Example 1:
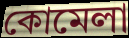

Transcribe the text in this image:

কোমেলা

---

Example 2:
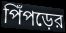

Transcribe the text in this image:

পিঁপড়ের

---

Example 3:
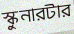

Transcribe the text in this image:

স্কুনারটার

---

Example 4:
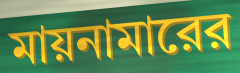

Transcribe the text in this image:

মায়নামারের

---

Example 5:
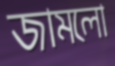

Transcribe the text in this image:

জামলো